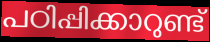
പഠിപ്പിക്കാറുണ്ട്